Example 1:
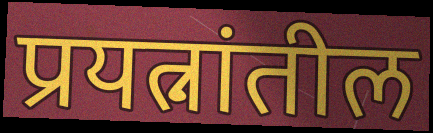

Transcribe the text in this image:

प्रयत्नांतील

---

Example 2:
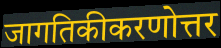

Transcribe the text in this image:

जागतिकीकरणोत्तर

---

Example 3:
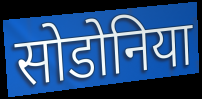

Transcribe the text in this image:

सोडोनिया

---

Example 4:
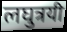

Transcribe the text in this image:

लघुत्रयी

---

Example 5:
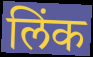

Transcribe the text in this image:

लिंक